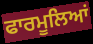
ਫਾਰਮੂਲਿਆਂ